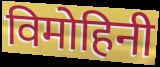
विमोहिनी